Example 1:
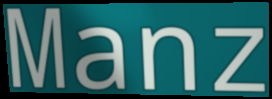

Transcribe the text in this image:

Manz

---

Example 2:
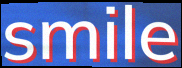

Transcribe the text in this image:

smile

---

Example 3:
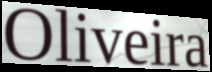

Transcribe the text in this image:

Oliveira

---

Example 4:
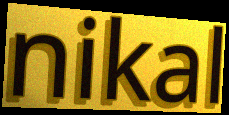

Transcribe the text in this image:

nikal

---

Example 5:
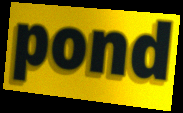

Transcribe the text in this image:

pond